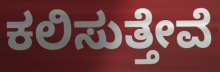
ಕಲಿಸುತ್ತೇವೆ